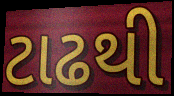
ટાઢથી